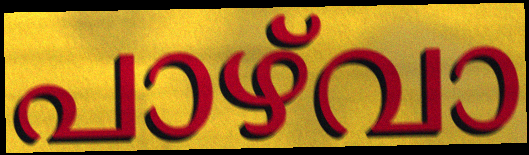
പാഴ്‌വാ